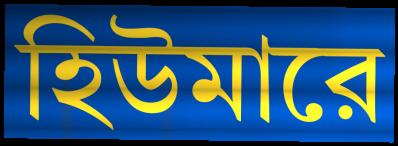
হিউমারে